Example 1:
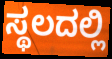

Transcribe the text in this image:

ಸ್ಥಲದಲ್ಲಿ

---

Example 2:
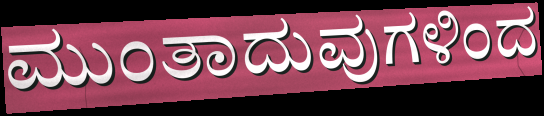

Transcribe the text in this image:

ಮುಂತಾದುವುಗಳಿಂದ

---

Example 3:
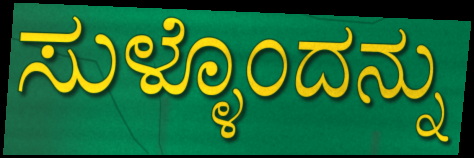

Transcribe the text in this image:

ಸುಳ್ಳೊಂದನ್ನು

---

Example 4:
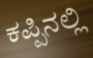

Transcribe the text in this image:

ಕಪ್ಪಿನಲ್ಲಿ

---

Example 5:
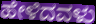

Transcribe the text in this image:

ಹೇಳಿದವಳು